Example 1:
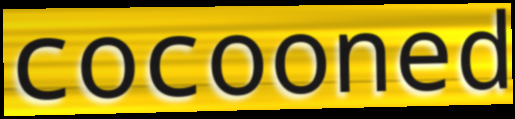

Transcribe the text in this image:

cocooned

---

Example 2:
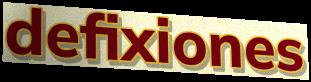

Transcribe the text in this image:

defixiones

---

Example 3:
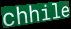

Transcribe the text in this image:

chhile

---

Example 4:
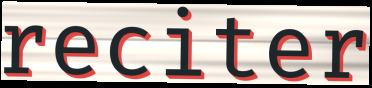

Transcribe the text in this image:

reciter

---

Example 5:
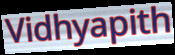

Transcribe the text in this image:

Vidhyapith